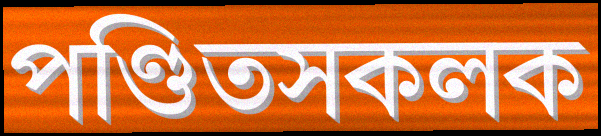
পণ্ডিতসকলক